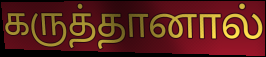
கருத்தானால்